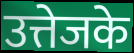
उत्तेजके